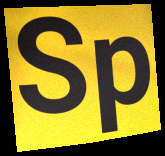
Sp